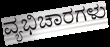
ವ್ಯಭಿಚಾರಗಳು